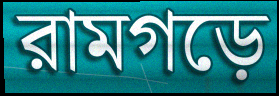
রামগড়ে